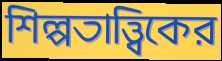
শিল্পতাত্ত্বিকের